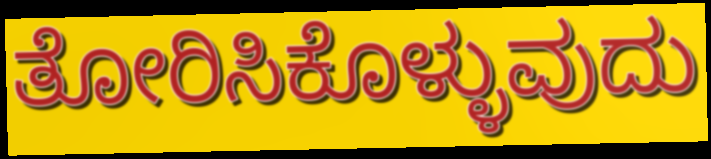
ತೋರಿಸಿಕೊಳ್ಳುವುದು